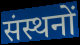
संस्थनों